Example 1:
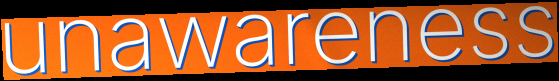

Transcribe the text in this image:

unawareness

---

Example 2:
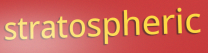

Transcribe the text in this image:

stratospheric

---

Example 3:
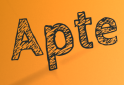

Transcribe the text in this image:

Apte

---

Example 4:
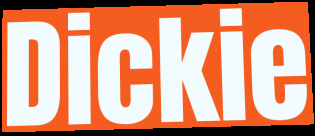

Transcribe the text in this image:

Dickie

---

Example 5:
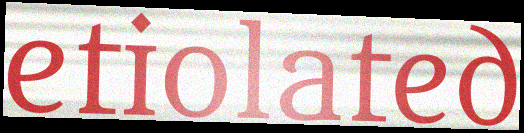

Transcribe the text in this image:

etiolated